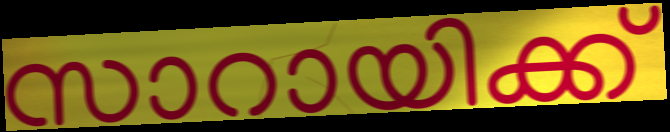
സാറായിക്ക്